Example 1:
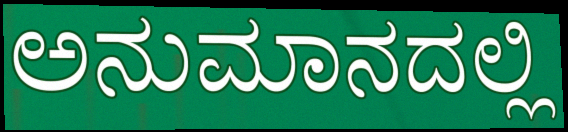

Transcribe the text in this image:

ಅನುಮಾನದಲ್ಲಿ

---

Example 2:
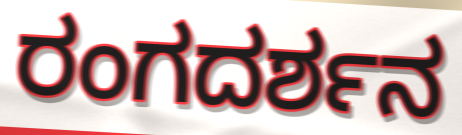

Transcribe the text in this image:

ರಂಗದರ್ಶನ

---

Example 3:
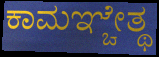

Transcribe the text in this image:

ಕಾಮಞ್ಚೇತ್ಥ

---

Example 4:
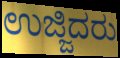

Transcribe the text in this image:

ಉಜ್ಜಿದರು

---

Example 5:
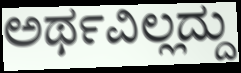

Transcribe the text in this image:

ಅರ್ಥವಿಲ್ಲದ್ದು